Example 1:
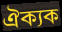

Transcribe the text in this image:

ঐক্যক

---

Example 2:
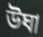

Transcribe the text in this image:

উঘা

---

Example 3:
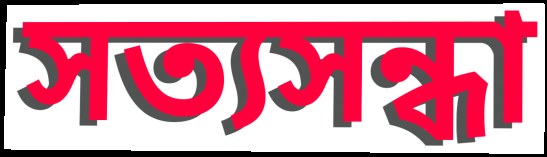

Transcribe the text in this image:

সত্যসন্ধা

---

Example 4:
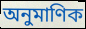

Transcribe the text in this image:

অনুমাণিক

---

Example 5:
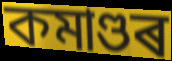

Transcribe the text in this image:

কমাণ্ডৰ